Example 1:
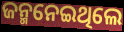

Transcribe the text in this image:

ଜନ୍ମନେଇଥିଲେ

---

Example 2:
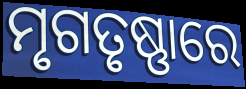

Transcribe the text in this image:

ମୃଗତୃଷ୍ଣାରେ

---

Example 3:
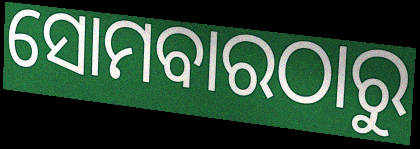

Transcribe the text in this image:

ସୋମବାରଠାରୁ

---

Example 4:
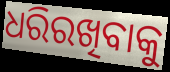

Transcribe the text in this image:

ଧରିରଖିବାକୁ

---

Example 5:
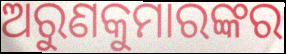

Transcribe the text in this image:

ଅରୁଣକୁମାରଙ୍କର